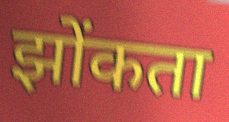
झोंकता